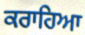
ਕਰਾਹਿਆ